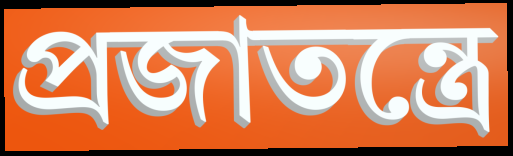
প্রজাতন্ত্রে